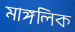
মাঙ্গলিক